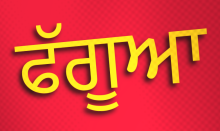
ਫੱਗੂਆ